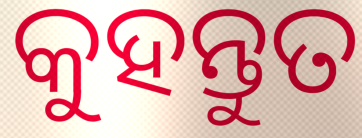
କୁହନ୍ତୁତ